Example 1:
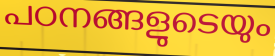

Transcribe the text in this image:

പഠനങ്ങളുടെയും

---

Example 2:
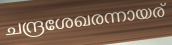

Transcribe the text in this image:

ചന്ദ്രശേഖരന്നായര്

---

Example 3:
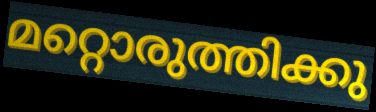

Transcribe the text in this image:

മറ്റൊരുത്തിക്കു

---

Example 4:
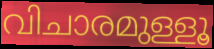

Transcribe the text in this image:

വിചാരമുള്ളൂ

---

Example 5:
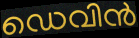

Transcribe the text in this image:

ഡെവിൻ